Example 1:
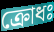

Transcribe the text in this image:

ক্রোধঃ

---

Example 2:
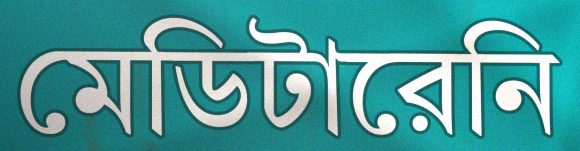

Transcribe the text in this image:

মেডিটারেনি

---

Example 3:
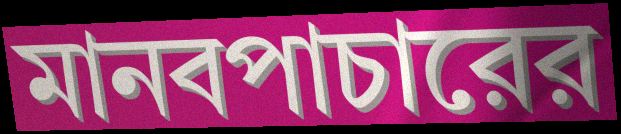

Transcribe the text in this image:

মানবপাচারের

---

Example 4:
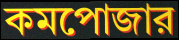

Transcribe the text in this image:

কমপোজার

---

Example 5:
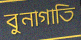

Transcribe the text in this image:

বুনাগাতি